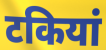
टकियां